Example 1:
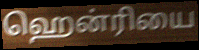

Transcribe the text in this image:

ஹென்ரியை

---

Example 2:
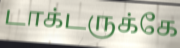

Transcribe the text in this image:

டாக்டருக்கே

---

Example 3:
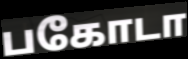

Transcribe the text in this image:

பகோடா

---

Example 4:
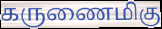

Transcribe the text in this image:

கருணைமிகு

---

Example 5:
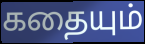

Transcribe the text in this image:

கதையும்